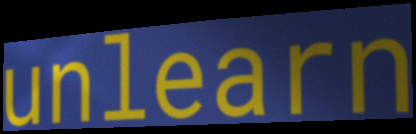
unlearn